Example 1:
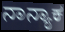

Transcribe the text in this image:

ನಾನ್ಯಾಕ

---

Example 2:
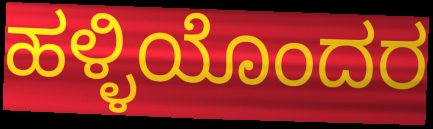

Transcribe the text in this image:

ಹಳ್ಳಿಯೊಂದರ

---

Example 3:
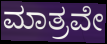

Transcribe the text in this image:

ಮಾತ್ರವೇ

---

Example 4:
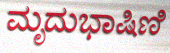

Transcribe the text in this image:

ಮೃದುಭಾಷಿಣಿ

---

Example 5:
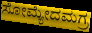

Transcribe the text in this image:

ಸೋಮ್ಯೇದಮಗ್ರ